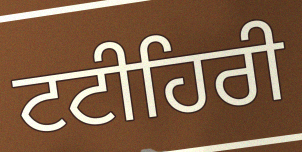
ਟਟੀਹਿਰੀ